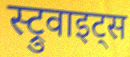
स्ट्रुवाइट्स